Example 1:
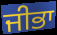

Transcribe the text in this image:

ਜੀਭਾ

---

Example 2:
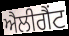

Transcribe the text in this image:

ਐਲੀਗੈਂਟ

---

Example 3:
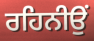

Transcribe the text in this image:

ਰਹਿਨੀਉਂ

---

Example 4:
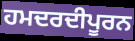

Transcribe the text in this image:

ਹਮਦਰਦੀਪੂਰਨ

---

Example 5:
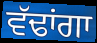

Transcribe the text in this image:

ਵੱਢਾਂਗਾ